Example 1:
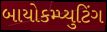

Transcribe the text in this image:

બાયોકમ્પ્યુટિંગ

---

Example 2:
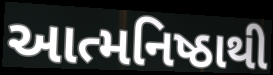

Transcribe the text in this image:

આત્મનિષ્ઠાથી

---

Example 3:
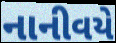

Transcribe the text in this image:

નાનીવયે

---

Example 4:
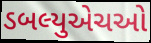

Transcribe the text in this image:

ડબલ્યુએચઓ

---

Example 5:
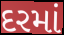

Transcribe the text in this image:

દરમાં